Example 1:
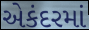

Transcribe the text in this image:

એકંદરમાં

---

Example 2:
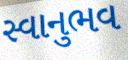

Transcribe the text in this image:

સ્વાનુભવ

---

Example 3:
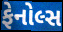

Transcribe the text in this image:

ફેનોલ્સ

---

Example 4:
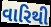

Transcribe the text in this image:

વારિથી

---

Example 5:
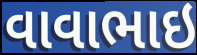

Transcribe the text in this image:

વાવાભાઇ